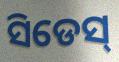
ସିଡେସ୍